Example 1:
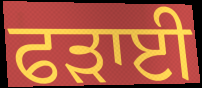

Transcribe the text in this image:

ਫੜਾਈ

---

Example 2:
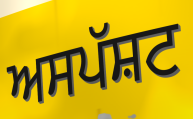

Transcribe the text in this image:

ਅਸਪੱਸ਼ਟ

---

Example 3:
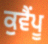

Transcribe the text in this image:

ਕੁਵੈਂਪੂ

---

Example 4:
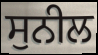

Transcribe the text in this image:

ਸੁਨੀਲ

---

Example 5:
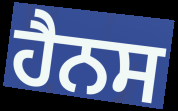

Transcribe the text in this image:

ਹੈਨਸ